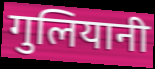
गुलियानी